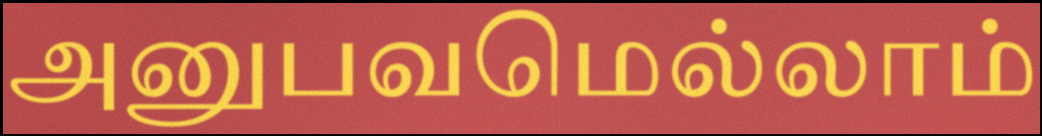
அனுபவமெல்லாம்